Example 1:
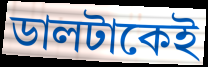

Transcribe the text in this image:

ডালটাকেই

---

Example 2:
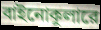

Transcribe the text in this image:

বাইনোকুলারে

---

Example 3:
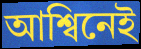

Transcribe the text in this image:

আশ্বিনেই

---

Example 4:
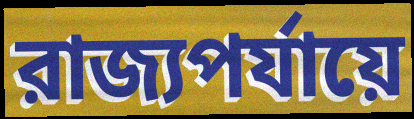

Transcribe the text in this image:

রাজ্যপর্যায়ে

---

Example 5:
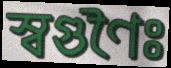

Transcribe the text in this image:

স্বগুণৈঃ